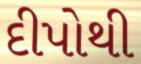
દીપોથી